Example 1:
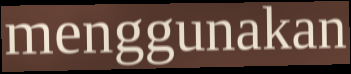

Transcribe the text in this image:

menggunakan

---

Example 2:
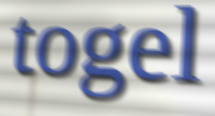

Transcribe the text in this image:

togel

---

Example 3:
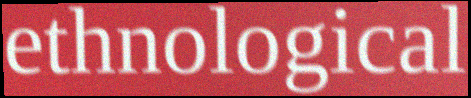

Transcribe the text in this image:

ethnological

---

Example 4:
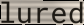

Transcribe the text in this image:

lured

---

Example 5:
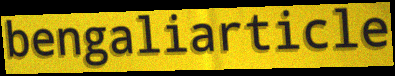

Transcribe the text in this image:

bengaliarticle